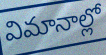
విమానాల్లో